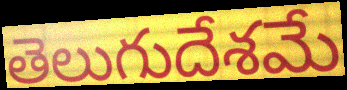
తెలుగుదేశమే